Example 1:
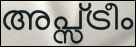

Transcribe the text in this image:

അപ്സ്ട്രീം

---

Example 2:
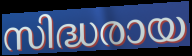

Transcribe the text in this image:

സിദ്ധരായ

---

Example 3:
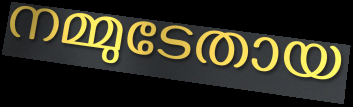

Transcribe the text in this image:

നമ്മുടേതായ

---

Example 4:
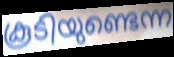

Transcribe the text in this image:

കൂടിയുണ്ടെന്ന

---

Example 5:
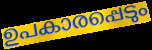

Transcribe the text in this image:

ഉപകാരപ്പെടും